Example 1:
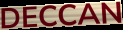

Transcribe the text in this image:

DECCAN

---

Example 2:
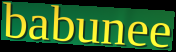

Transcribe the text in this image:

babunee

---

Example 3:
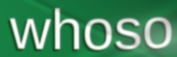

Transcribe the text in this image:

whoso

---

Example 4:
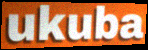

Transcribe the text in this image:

ukuba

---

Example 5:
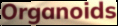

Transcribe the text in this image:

Organoids